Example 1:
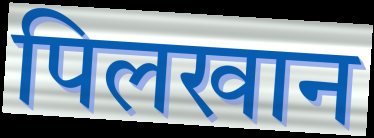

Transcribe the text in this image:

पिलखान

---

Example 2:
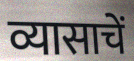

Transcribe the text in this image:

व्यासाचें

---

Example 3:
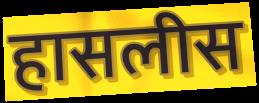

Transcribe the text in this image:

हासलीस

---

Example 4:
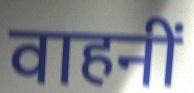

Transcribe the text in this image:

वाहनीं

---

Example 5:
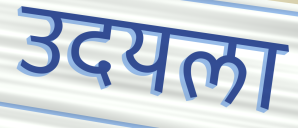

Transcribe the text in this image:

उदयला